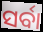
ସର୍ବା